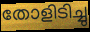
തോളിടിച്ചു